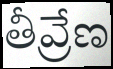
తీవ్రేణ